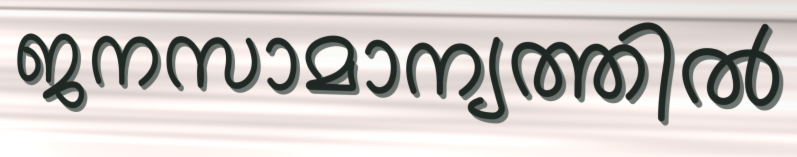
ജനസാമാന്യത്തിൽ